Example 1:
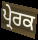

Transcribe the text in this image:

ਪ੍ਰੇਰਕ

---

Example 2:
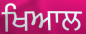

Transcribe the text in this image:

ਖਿਆਲ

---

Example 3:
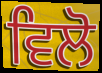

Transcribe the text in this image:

ਵਿਲੋ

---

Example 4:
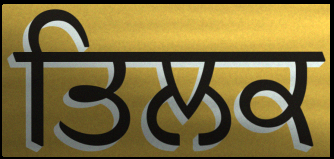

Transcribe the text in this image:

ਤਿਲਕ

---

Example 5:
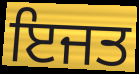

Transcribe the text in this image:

ਇਜਤ